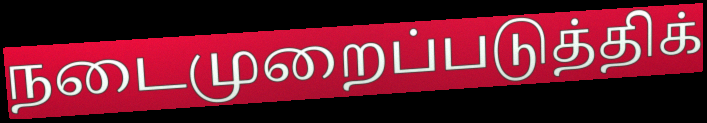
நடைமுறைப்படுத்திக்